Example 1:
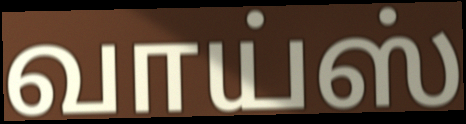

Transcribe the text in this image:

வாய்ஸ்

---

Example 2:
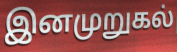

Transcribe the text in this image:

இனமுறுகல்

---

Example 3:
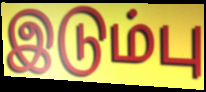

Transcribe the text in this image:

இடும்பு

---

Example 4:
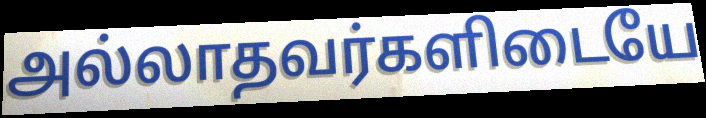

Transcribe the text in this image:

அல்லாதவர்களிடையே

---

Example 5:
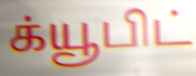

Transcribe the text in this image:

க்யூபிட்